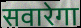
सवारेगा